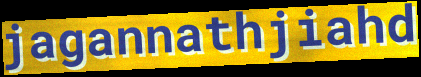
jagannathjiahd